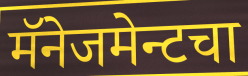
मॅनेजमेन्टचा